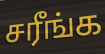
சரீங்க